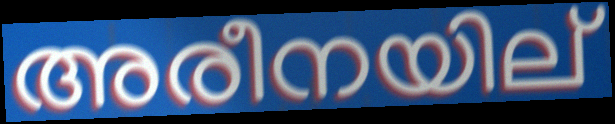
അരീനയില്